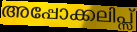
അപ്പോക്കലിപ്സ്